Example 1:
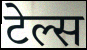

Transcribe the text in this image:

टेल्स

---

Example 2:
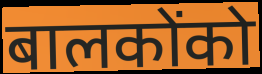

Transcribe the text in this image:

बालकोंको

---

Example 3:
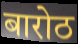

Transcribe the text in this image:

बारोठ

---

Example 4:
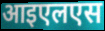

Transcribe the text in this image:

आइएलएस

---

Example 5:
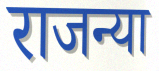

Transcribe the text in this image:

राजन्या